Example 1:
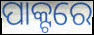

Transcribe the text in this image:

ପାକ୍ଟରେ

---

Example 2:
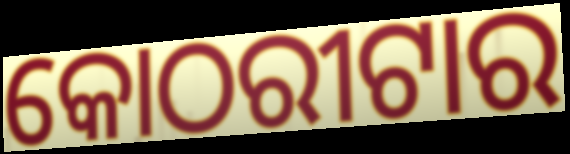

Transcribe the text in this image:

କୋଠରୀଟାର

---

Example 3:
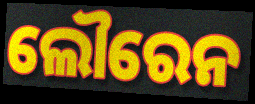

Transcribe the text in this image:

ଲୌରେନ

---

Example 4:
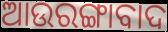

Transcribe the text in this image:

ଆଉରଙ୍ଗାବାଦ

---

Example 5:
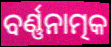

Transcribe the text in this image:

ବର୍ଣ୍ଣନାତ୍ମକ